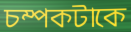
চম্পকটাকে